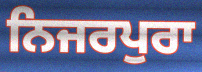
ਨਿਜਰਪੁਰਾ